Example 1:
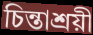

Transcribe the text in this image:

চিন্তাশ্রয়ী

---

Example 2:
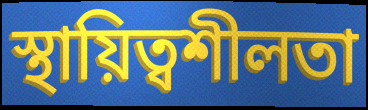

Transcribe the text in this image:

স্থায়িত্বশীলতা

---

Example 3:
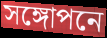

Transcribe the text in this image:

সঙ্গোপনে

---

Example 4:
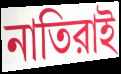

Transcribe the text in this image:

নাতিরাই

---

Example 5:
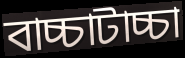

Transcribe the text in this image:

বাচ্চাটাচ্চা